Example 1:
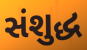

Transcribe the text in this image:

સંશુદ્ધ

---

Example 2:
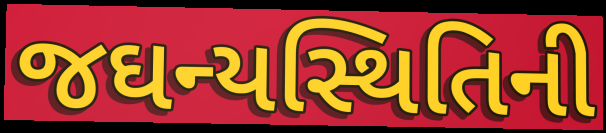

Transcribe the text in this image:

જઘન્યસ્થિતિની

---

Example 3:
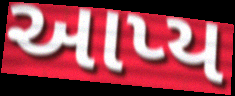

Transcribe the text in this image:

આપ્ય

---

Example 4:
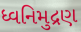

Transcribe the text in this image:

ધ્વનિમુદ્રણ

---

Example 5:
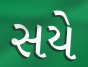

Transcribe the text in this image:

સયે